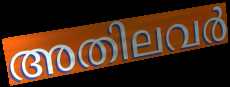
അതിലവർ